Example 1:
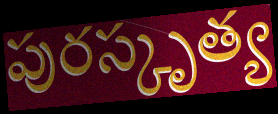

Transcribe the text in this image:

పురస్కృత్య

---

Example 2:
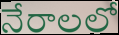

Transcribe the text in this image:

నేరాలలో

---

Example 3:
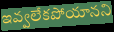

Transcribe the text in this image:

ఇవ్వలేకపోయానని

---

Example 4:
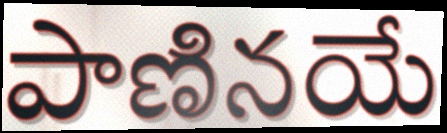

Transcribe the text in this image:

పాణినయే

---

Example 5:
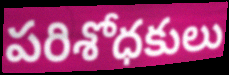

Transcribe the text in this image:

పరిశోధకులు